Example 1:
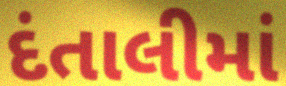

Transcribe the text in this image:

દંતાલીમાં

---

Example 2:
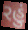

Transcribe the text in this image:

રહું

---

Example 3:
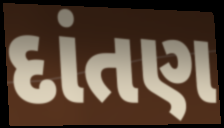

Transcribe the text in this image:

દાંતણ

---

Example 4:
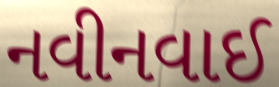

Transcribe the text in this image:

નવીનવાઈ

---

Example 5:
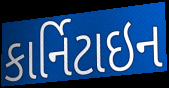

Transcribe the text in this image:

કાર્નિટાઇન